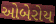
ઓબેરોય